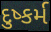
દુષ્કર્મ